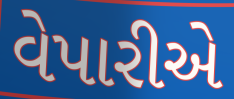
વેપારીએ